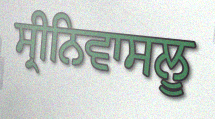
ਸ੍ਰੀਨਿਵਾਸਲੂ